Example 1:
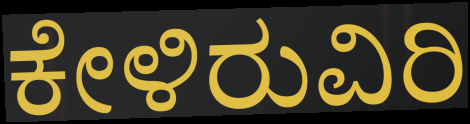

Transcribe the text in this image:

ಕೇಳಿರುವಿರಿ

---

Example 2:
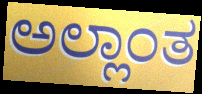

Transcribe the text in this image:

ಅಲ್ಲಾಂತ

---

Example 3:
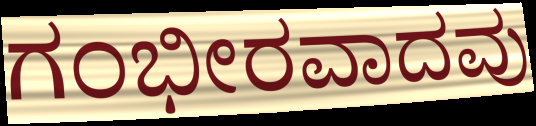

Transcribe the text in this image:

ಗಂಭೀರವಾದವು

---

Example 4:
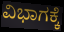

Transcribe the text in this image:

ವಿಭಾಗಕ್ಕೆ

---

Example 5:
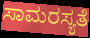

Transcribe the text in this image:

ಸಾಮರಸ್ಯತೆ